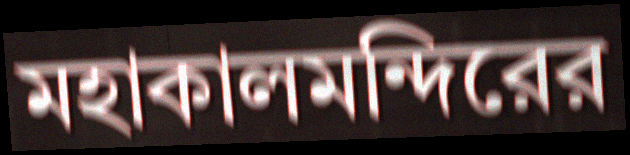
মহাকালমন্দিরের